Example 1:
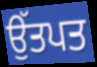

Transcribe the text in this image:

ਉੱਤਪਤ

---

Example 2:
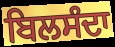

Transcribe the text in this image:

ਬਿਲਸੰਦਾ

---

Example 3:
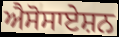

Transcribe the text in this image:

ਐਸੋਸਾਏਸ਼ਨ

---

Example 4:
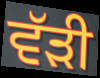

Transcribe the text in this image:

ਵੱੜੀ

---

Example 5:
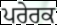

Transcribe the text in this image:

ਪਰੇਰਕ